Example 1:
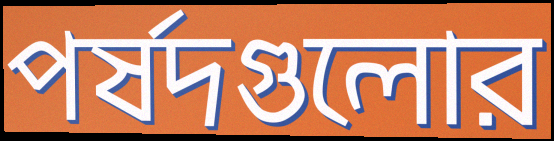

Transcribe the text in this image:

পর্ষদগুলোর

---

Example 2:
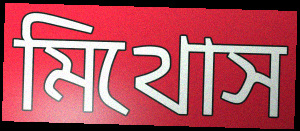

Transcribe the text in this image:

মিথোস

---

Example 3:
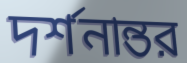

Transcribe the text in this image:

দর্শনান্তর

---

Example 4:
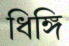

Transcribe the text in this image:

ধিঙ্গি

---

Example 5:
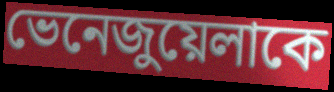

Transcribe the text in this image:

ভেনেজুয়েলাকে